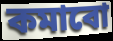
কমাবো